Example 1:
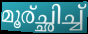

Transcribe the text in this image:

മൂര്ച്ഛിച്ച്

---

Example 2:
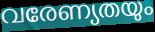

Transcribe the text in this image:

വരേണ്യതയും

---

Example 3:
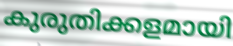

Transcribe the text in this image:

കുരുതിക്കളമായി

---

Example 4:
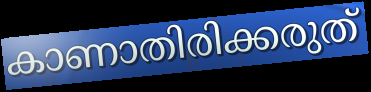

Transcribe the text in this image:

കാണാതിരിക്കരുത്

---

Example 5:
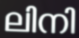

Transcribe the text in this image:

ലിനി